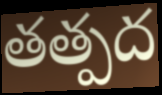
తత్పద